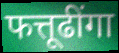
फत्तूढींगा